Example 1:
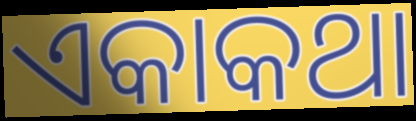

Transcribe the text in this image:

ଏକାକଥା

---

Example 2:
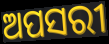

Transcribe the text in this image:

ଅପସରୀ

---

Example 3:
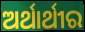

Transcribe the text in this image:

ଅର୍ଥାର୍ଥୀର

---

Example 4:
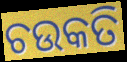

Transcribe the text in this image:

ଚଉକତି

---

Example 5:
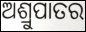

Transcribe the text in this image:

ଅଶ୍ରୁପାତର